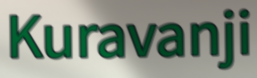
Kuravanji